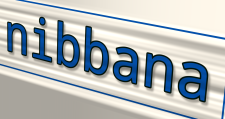
nibbana